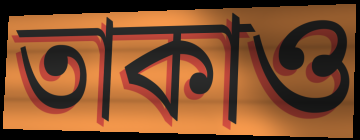
তাকাও